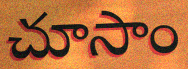
చూసాం